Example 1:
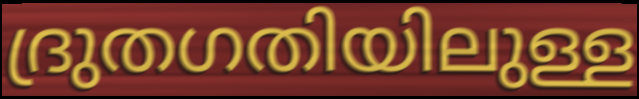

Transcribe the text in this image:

ദ്രുതഗതിയിലുള്ള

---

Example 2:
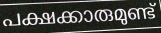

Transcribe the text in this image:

പക്ഷക്കാരുമുണ്ട്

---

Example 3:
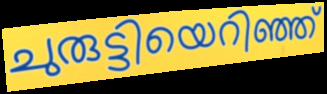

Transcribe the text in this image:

ചുരുട്ടിയെറിഞ്ഞ്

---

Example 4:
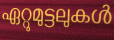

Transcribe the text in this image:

ഏറ്റുമുട്ടലുകൾ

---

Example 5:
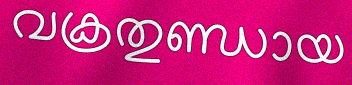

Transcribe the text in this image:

വക്രതുണ്ഡായ